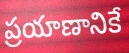
ప్రయాణానికే